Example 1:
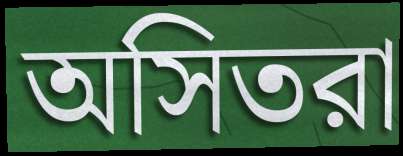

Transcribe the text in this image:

অসিতরা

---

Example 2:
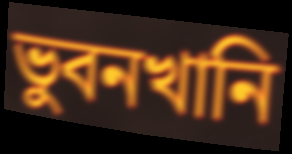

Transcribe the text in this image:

ভুবনখানি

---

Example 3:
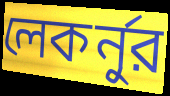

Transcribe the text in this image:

লেকর্নুর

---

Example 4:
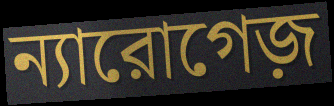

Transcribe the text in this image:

ন্যারোগেজ়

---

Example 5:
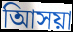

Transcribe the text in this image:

আিসয়া